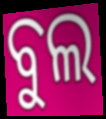
ବୁଲ